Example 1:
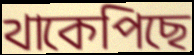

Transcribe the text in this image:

থাকেপিছে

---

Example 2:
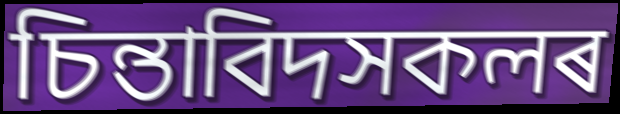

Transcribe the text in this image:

চিন্তাবিদসকলৰ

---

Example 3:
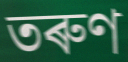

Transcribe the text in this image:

তৰুণ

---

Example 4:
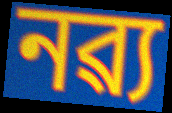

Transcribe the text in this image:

নৱ্য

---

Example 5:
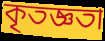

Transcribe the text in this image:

কৃতজ্ঞতা